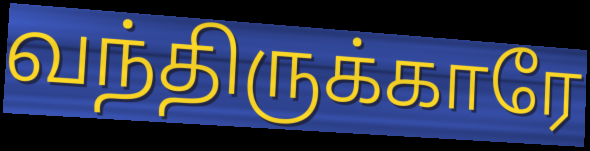
வந்திருக்காரே